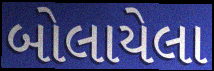
બોલાયેલા